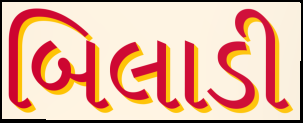
બિલાડી